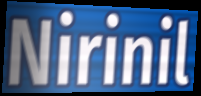
Nirinil